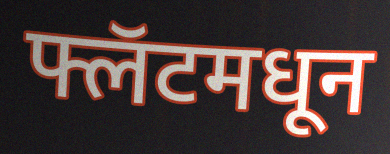
फ्लॅटमधून